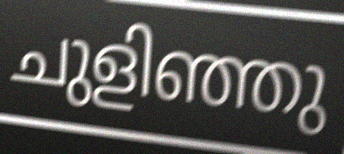
ചുളിഞ്ഞു